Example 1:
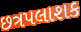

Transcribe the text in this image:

છત્રપલાશક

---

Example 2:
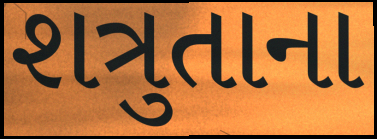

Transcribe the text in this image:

શત્રુતાના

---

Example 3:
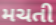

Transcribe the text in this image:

મચતી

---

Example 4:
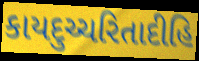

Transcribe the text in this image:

કાયદુચ્ચરિતાદીહિ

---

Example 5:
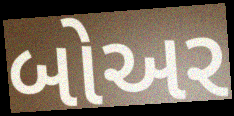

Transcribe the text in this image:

બોઅર